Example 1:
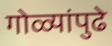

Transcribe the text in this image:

गोळ्यांपुढे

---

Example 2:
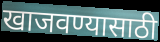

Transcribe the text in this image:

खाजवण्यासाठी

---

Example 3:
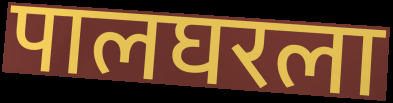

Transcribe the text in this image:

पालघरला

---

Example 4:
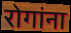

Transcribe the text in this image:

रोगांना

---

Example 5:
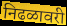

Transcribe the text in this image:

निढळावरी